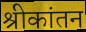
श्रीकांतन